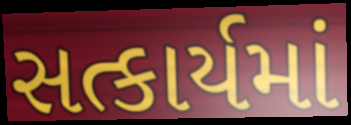
સત્કાર્યમાં